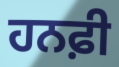
ਹਨਫ਼ੀ